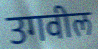
उगवील